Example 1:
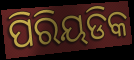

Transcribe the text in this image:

ପିରିୟଡିକ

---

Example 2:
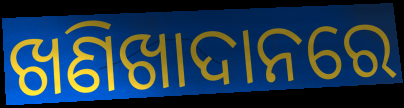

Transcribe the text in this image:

ଖଣିଖାଦାନରେ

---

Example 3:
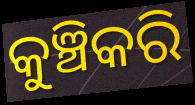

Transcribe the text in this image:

କୁଞ୍ଚିକରି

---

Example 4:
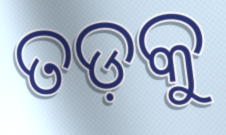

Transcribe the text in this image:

ତଡ଼କୁ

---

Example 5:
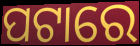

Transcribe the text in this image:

ପଟାରେ